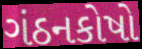
ગંઠનકોષો